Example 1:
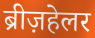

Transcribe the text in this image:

ब्रीज़हेलर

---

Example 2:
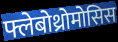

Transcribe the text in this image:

फ्लेबोथ्रोमोसिस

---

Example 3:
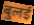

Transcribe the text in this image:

बुलई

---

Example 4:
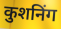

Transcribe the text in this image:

कुशनिंग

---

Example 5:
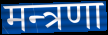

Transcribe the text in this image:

मन्त्रणा